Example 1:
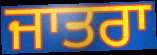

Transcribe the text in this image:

ਜਾਤਰਾ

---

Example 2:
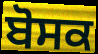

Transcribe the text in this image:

ਬੋਸਕ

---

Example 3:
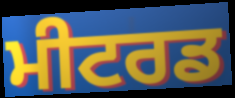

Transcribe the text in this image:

ਮੀਟਰਡ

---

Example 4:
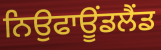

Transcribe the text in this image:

ਨਿਉਫਾਊਂਡਲੈਂਡ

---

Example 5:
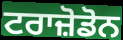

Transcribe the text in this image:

ਟਰਾਜ਼ੋਡੋਨ